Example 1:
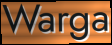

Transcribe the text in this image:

Warga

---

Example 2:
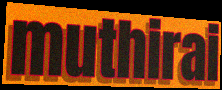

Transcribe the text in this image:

muthirai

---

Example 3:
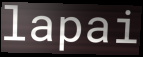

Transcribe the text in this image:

lapai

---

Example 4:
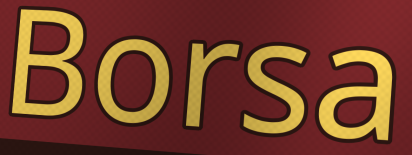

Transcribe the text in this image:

Borsa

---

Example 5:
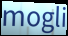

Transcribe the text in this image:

mogli